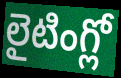
లైటింగ్లో